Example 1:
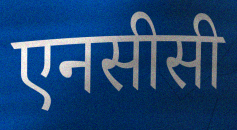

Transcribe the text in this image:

एनसीसी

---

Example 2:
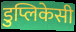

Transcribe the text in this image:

डुप्लिकेसी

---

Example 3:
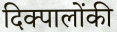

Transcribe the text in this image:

दिक्पालोंकी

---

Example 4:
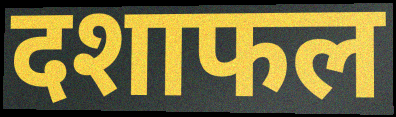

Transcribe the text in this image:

दशाफल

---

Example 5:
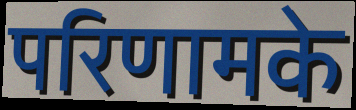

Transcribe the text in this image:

परिणामके